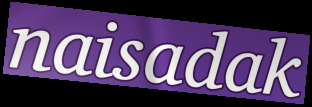
naisadak